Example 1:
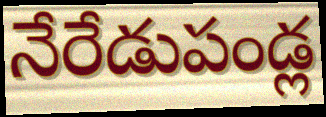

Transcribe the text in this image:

నేరేడుపండ్ల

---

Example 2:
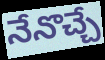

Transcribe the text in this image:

నేనొచ్చే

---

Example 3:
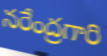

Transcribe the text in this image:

నరేంద్రగారి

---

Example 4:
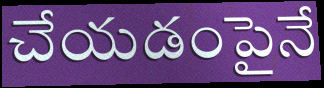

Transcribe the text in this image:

చేయడంపైనే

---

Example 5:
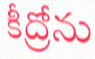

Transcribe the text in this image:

కీద్రోను